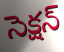
సెక్షన్